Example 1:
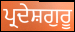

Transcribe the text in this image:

ਪ੍ਰਦੇਸ਼ਗੁਰੂ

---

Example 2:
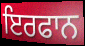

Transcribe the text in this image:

ਇਰਫਾਨ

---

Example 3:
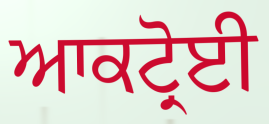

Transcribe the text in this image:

ਆਕਟ੍ਰੋਈ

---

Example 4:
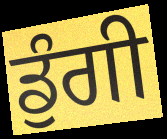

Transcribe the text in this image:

ਡੁੰਗੀ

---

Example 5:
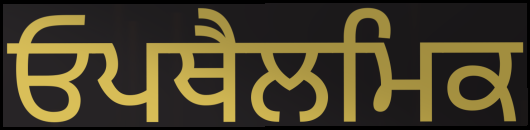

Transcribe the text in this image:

ਓਪਥੈਲਮਿਕ